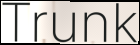
Trunk